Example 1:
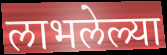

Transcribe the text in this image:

लाभलेल्या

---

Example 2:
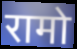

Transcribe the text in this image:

रामो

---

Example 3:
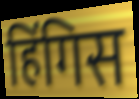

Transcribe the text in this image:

हिंगिस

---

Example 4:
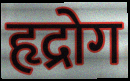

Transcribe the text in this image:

हृद्रोग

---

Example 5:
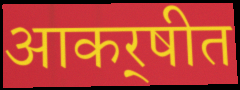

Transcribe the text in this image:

आकर्षीत